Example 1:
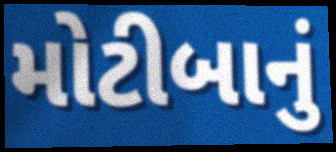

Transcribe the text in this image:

મોટીબાનું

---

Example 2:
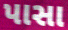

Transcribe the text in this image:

પાસા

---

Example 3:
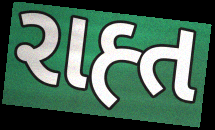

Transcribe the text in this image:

રાહ્ત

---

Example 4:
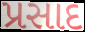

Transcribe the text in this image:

પ્રસાદ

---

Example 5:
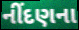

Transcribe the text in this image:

નીંદણના